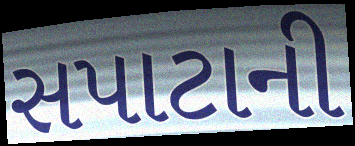
સપાટાની